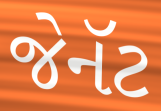
જેનૅટ